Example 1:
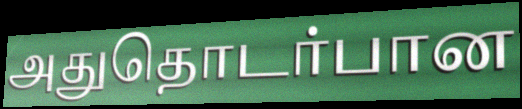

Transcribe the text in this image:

அதுதொடர்பான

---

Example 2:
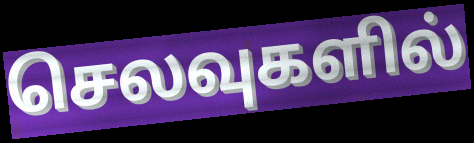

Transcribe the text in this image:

செலவுகளில்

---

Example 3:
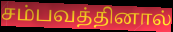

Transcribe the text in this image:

சம்பவத்தினால்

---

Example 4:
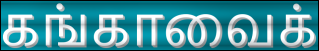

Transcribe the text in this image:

கங்காவைக்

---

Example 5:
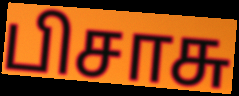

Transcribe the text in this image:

பிசாசு